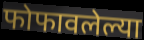
फोफावलेल्या